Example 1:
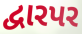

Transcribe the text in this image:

દ્વારપર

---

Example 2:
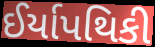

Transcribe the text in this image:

ઈર્યાપથિકી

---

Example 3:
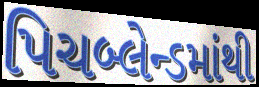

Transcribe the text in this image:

પિચબ્લેન્ડમાંથી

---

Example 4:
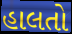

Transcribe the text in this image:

હાલતો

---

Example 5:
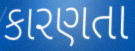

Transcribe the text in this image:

કારણતા